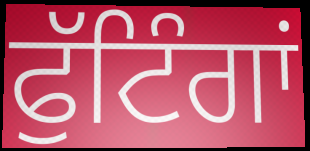
ਫੁੱਟਿੰਗਾਂ